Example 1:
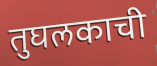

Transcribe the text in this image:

तुघलकाची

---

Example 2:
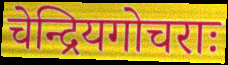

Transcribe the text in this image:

चेन्द्रियगोचराः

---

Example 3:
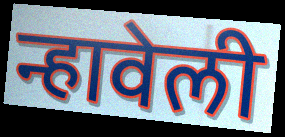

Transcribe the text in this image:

न्हावेली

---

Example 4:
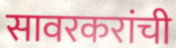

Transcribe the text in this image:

सावरकरांची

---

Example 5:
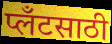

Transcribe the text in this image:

प्लँटसाठी